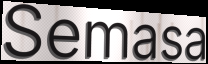
Semasa